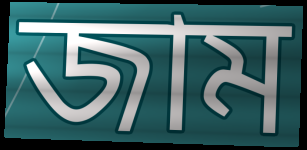
জাম